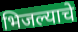
भिजल्याचे